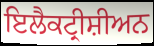
ਇਲੈਕਟ੍ਰੀਸ਼ੀਅਨ